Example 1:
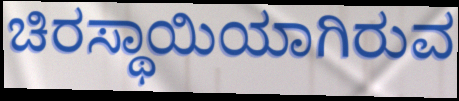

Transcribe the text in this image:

ಚಿರಸ್ಥಾಯಿಯಾಗಿರುವ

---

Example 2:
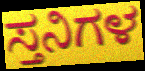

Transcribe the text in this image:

ಸ್ತನಿಗಳ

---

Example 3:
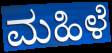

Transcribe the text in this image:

ಮಹಿಳೆ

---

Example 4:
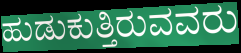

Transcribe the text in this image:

ಹುಡುಕುತ್ತಿರುವವರು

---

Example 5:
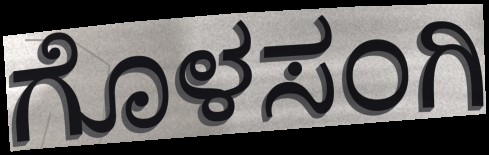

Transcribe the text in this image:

ಗೊಳಸಂಗಿ